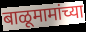
बाळूमामांच्या